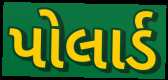
પોલાર્ડ